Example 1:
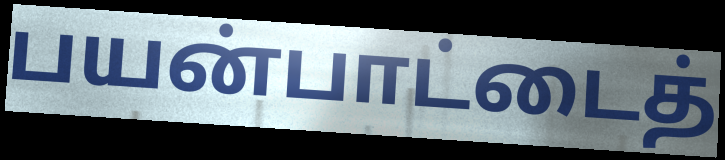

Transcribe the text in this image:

பயன்பாட்டைத்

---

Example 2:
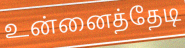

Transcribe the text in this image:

உன்னைத்தேடி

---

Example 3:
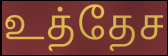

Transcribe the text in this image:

உத்தேச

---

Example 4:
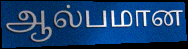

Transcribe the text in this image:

ஆல்பமான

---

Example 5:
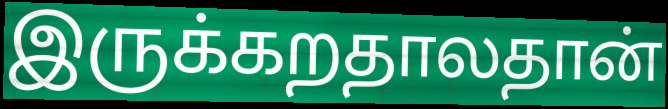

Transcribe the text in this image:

இருக்கறதாலதான்